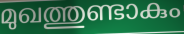
മുഖത്തുണ്ടാകും